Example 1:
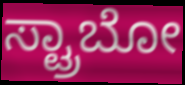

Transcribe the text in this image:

ಸ್ಟ್ರಾಬೋ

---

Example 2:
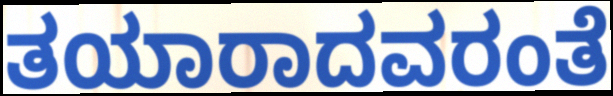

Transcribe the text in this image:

ತಯಾರಾದವರಂತೆ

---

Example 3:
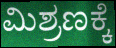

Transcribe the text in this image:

ಮಿಶ್ರಣಕ್ಕೆ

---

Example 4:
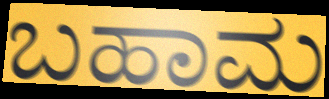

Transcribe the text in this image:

ಬಹಾಮ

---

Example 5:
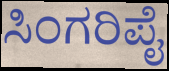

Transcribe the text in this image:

ಸಿಂಗರಿಪೈ